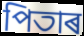
পিতাৰ